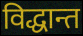
विद्धान्त